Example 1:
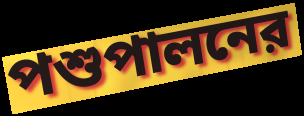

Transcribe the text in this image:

পশুপালনের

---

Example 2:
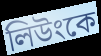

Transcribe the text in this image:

লিউংকে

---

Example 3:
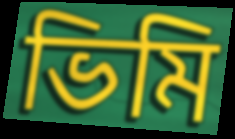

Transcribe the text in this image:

ভিমি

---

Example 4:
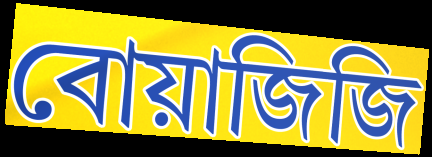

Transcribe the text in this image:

বোয়াজিজি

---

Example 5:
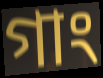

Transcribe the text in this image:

গাং